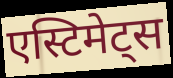
एस्टिमेट्स